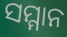
ସମ୍ମାନ